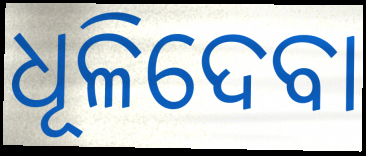
ଧୂଳିଦେବା